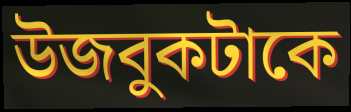
উজবুকটাকে